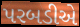
પરબડીએ